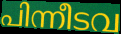
പിന്നീടവ